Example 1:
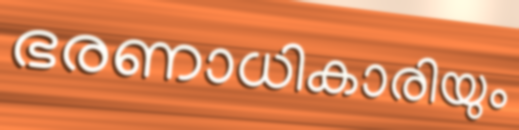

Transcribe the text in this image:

ഭരണാധികാരിയും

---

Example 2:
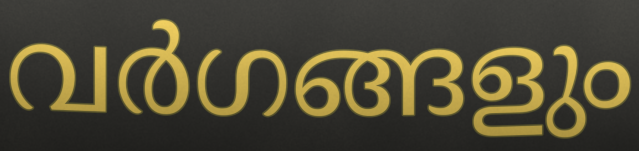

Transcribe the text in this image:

വർഗങ്ങളും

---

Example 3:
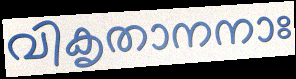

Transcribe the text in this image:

വികൃതാനനാഃ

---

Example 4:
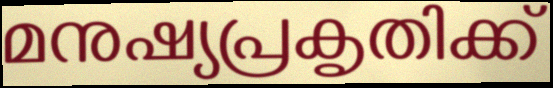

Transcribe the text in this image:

മനുഷ്യപ്രകൃതിക്ക്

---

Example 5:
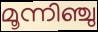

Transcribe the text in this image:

മൂന്നിഞ്ചു